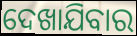
ଦେଖାଯିବାର